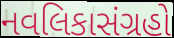
નવલિકાસંગ્રહો